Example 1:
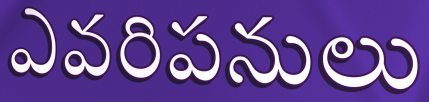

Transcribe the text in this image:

ఎవరిపనులు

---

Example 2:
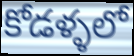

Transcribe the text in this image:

కోడళ్ళలో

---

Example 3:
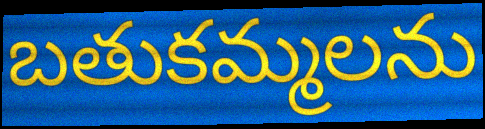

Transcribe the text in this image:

బతుకమ్మలను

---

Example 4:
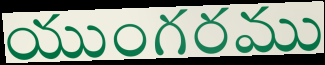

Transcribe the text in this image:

యుంగరము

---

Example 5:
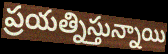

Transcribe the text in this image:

ప్రయత్నిస్తున్నాయి